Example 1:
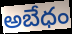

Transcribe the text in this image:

అబేధం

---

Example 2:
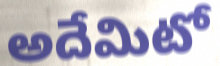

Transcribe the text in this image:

అదేమిటో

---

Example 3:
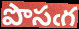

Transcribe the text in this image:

పొసఁగ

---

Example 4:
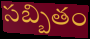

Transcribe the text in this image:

సబ్బితం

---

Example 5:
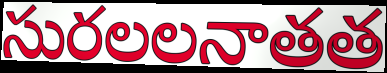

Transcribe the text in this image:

సురలలనాతత